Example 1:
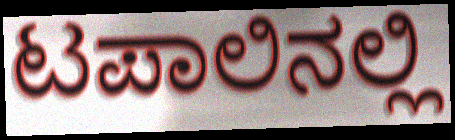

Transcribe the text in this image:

ಟಪಾಲಿನಲ್ಲಿ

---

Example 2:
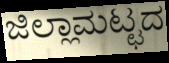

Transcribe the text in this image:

ಜಿಲ್ಲಾಮಟ್ಟದ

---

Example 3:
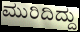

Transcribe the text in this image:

ಮುರಿದಿದ್ದು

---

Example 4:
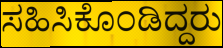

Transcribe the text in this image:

ಸಹಿಸಿಕೊಂಡಿದ್ದರು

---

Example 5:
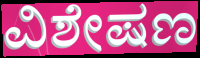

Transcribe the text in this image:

ವಿಶೇಷಣ